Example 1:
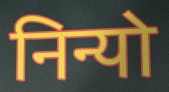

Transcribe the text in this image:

निन्यो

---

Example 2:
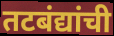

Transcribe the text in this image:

तटबंद्यांची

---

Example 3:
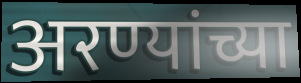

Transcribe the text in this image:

अरण्यांच्या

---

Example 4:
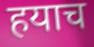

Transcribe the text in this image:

हयाच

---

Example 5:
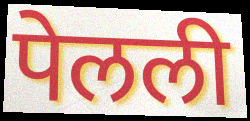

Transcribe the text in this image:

पेलली